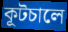
কূটচালে